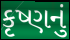
કૃષ્ણનું